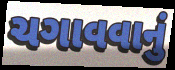
ચગાવવાનું